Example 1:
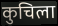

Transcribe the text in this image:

कुचिला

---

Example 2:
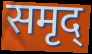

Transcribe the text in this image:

समृद्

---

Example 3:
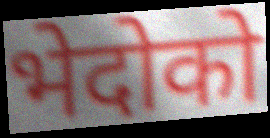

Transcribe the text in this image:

भेदोको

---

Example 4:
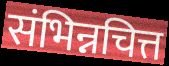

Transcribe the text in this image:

संभिन्नचित्त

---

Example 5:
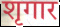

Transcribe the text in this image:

शृगार